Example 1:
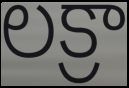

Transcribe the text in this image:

లక్రా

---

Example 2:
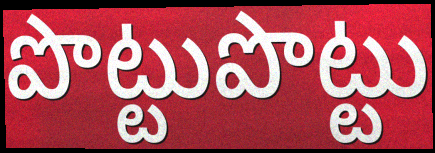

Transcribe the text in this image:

పొట్టుపొట్టు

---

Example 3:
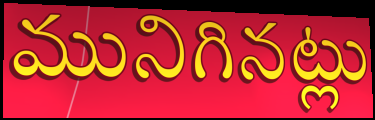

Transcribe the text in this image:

మునిగినట్లు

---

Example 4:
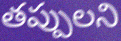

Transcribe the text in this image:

తప్పులని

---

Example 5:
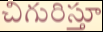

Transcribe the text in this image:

చిగురిస్తూ